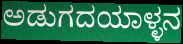
ಅಡುಗದಯಾಳ್ಳನ